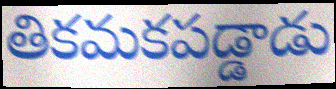
తికమకపడ్డాడు